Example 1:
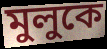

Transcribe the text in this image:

মুলুকে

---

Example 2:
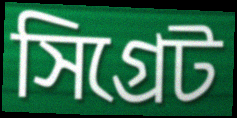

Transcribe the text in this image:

সিগ্রেট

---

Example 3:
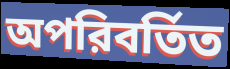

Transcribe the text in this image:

অপরিবর্তিত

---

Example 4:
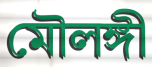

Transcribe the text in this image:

মৌলঙ্গী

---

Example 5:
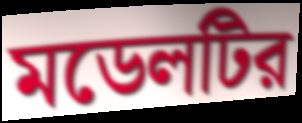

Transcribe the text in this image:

মডেলটির